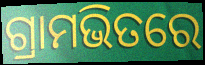
ଗ୍ରାମଭିତରେ